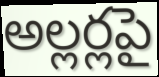
అల్లర్లపై